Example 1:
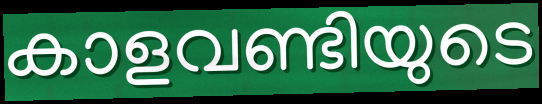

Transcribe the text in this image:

കാളവണ്ടിയുടെ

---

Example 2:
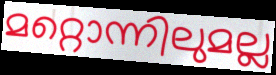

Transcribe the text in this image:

മറ്റൊന്നിലുമല്ല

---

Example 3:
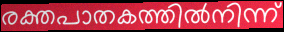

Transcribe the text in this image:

രക്തപാതകത്തിൽനിന്ന്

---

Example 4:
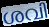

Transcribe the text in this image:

ശവി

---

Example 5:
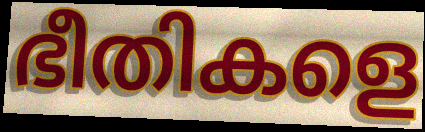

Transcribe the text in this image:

ഭീതികളെ